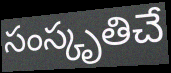
సంస్కృతిచే